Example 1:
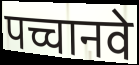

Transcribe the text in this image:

पच्चानवे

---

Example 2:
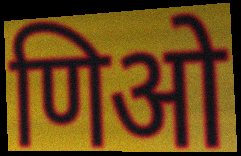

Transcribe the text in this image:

णिओ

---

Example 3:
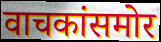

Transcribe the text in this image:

वाचकांसमोर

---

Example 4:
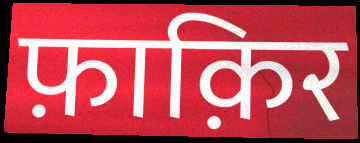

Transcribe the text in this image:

फ़ाक़िर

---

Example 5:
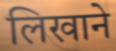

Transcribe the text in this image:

लिखाने